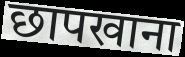
छापखाना